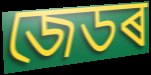
জেডৰ